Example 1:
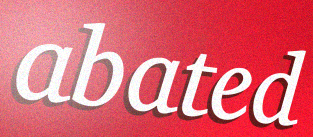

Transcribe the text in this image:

abated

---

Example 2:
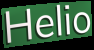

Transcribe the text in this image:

Helio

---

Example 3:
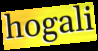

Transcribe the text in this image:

hogali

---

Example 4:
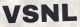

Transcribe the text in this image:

VSNL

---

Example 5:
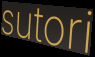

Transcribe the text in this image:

sutori